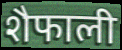
शैफाली